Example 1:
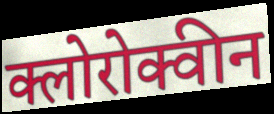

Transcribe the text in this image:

क्लोरोक्वीन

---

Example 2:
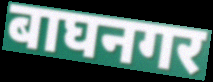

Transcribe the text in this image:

बाघनगर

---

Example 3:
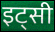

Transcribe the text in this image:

इट्सी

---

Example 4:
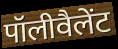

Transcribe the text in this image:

पॉलीवैलेंट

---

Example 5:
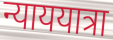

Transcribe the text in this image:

न्याययात्रा